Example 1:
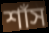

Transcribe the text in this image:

শাঁস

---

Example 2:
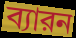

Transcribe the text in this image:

ব্যারন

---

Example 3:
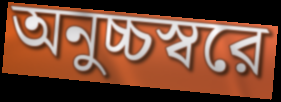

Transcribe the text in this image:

অনুচ্চস্বরে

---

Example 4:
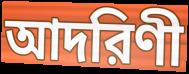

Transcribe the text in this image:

আদরিণী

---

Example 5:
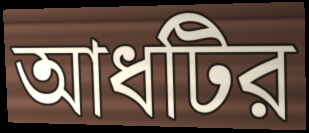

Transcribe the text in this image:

আধটির